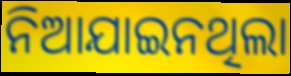
ନିଆଯାଇନଥିଲା